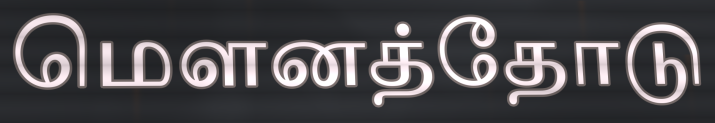
மௌனத்தோடு